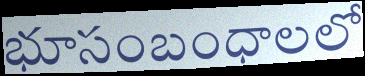
భూసంబంధాలలో